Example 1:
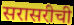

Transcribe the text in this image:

सरासरीची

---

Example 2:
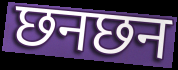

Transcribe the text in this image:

छनछन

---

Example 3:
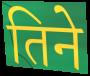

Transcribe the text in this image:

तिने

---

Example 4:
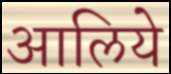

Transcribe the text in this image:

आलिये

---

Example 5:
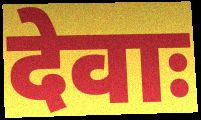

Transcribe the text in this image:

देवाः